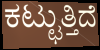
ಕಟ್ಟುತ್ತಿದೆ